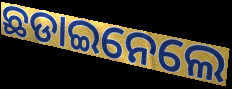
ଛଡାଇନେଲେ